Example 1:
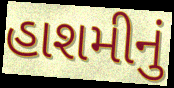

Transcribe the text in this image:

હાશમીનું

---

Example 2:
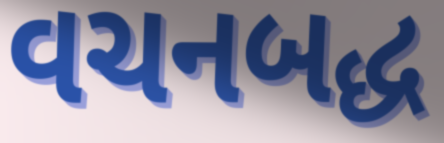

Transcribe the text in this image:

વચનબદ્ધ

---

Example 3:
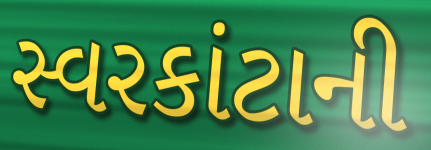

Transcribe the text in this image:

સ્વરકાંટાની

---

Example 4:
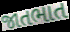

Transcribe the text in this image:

જાતભાત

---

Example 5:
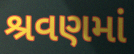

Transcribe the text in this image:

શ્રવણમાં